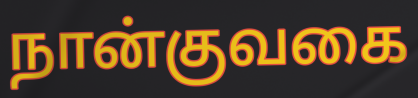
நான்குவகை